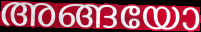
അങ്ങയോ